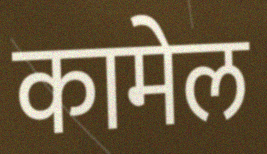
कामेल